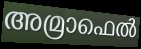
അമ്രാഫെൽ